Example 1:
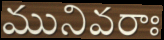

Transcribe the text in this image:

మునివరాః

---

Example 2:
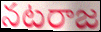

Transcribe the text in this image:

నటరాజ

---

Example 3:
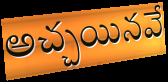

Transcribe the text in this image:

అచ్చయినవే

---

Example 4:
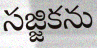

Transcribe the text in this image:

సజ్జికను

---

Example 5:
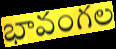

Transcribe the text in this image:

భావంగల